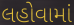
લહોવામાં